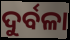
ଦୁର୍ବଳା